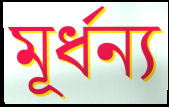
মূৰ্ধন্য